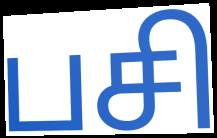
பசி